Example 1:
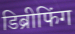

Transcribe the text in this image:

डिब्रीफिंग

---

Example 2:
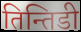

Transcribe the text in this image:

तिन्तिडी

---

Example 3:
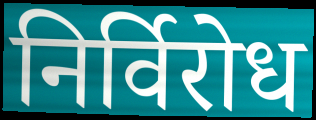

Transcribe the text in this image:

निर्विरोध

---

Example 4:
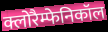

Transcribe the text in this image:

क्लोरैम्फेनिकॉल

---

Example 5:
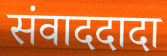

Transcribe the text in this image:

संवाददादा